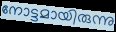
നോട്ടമായിരുന്നു